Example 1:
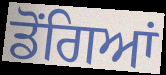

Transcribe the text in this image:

ਡੋਂਗਿਆਂ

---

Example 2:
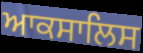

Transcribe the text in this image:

ਆਕਸਾਲਿਸ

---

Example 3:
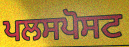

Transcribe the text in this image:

ਪਲਸਪੋਸਟ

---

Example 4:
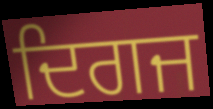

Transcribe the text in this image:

ਦਿਗਜ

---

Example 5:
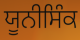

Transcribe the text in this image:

ਯੂਨੀਸਿੰਕ